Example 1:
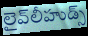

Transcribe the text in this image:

లైవ్‌లీహుడ్స్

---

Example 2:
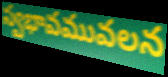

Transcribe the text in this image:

స్వభావమువలన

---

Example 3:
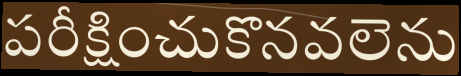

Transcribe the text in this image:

పరీక్షించుకొనవలెను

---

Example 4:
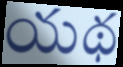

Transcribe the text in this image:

యథ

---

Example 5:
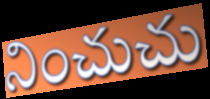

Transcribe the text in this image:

నించుచు